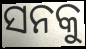
ସନକୁ